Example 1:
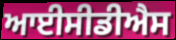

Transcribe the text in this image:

ਆਈਸੀਡੀਐਸ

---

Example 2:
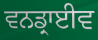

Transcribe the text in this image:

ਵਨਡ੍ਰਾਈਵ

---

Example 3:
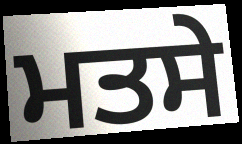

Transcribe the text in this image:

ਮਤਸੇ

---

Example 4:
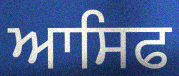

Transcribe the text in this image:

ਆਸਿਫ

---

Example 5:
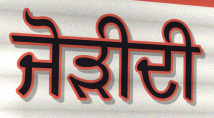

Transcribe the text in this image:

ਜੋੜੀਦੀ